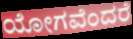
ಯೋಗವೆಂದರೆ